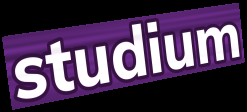
studium